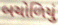
બચોળિયું